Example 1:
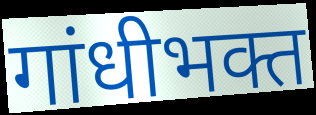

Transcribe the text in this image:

गांधीभक्त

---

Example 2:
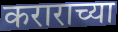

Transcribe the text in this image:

कराराच्या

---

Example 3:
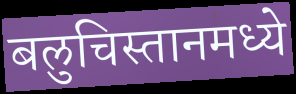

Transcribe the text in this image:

बलुचिस्तानमध्ये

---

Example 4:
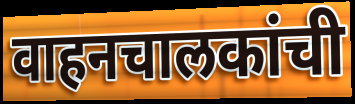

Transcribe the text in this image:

वाहनचालकांची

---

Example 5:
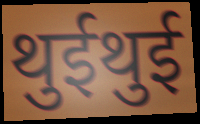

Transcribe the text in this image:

थुईथुई